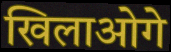
खिलाओगे